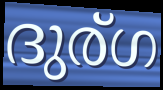
ദുര്ഗ